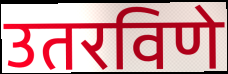
उतरविणे